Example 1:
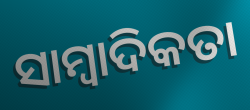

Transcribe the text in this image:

ସାମ୍ୱାଦିକତା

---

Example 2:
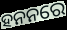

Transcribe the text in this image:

ହନନରେ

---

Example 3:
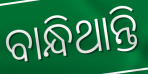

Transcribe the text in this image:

ବାନ୍ଧିଥାନ୍ତି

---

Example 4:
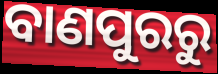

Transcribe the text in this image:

ବାଣପୁରରୁ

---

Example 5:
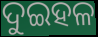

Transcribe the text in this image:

ଦୁଇହଳ